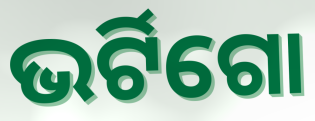
ଭର୍ଟିଗୋ